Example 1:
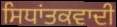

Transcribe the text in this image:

ਸਿਧਾਂਤਕਵਾਦੀ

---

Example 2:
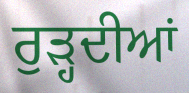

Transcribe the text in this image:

ਰੁੜ੍ਹਦੀਆਂ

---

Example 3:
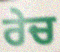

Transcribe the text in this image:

ਰੇਚ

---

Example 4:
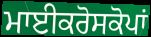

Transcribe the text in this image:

ਮਾਈਕਰੋਸਕੋਪਾਂ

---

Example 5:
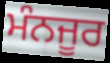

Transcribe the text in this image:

ਮੰਨਜੂਰ